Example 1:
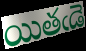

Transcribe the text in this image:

యితఁడె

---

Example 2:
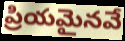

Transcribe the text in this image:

ప్రియమైనవే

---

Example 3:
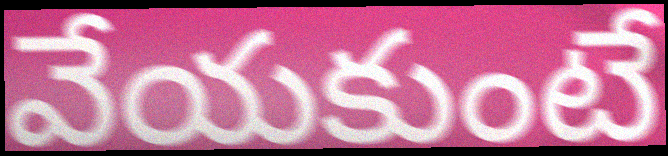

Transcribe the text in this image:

వేయకుంటే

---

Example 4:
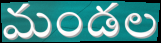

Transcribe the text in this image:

మండల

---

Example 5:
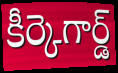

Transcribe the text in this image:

కీర్కెగార్డ్